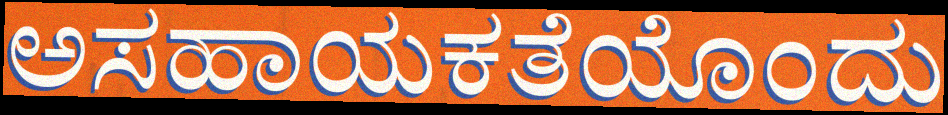
ಅಸಹಾಯಕತೆಯೊಂದು